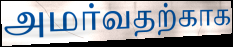
அமர்வதற்காக